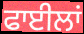
ਫਾਈਲਾਂ